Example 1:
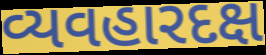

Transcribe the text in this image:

વ્યવહારદક્ષ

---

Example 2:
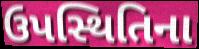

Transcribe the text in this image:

ઉપસ્થિતિના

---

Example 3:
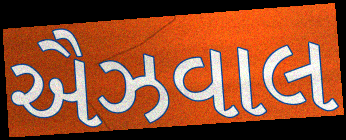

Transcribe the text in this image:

ઐઝવાલ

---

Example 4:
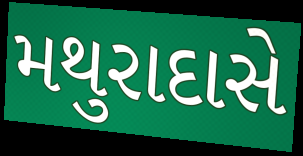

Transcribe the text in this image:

મથુરાદાસે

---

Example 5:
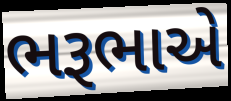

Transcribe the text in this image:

ભરૂભાએ